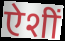
ऐशीं